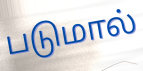
படுமால்